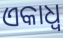
ଏକାଧ୍ଵ